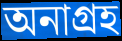
অনাগ্রহ